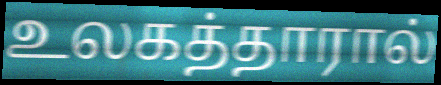
உலகத்தாரால்